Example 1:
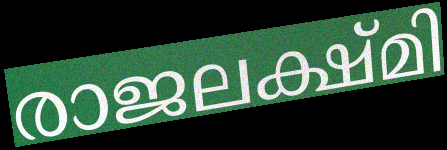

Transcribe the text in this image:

രാജലക്ഷ്മി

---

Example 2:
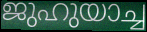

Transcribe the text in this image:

ജുഹുയാച്ച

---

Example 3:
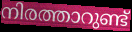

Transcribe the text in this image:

നിരത്താറുണ്ട്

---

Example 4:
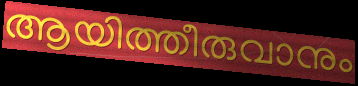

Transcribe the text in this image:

ആയിത്തീരുവാനും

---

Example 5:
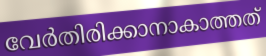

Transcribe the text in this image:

വേർതിരിക്കാനാകാത്തത്